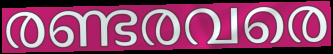
രണ്ടരവരെ